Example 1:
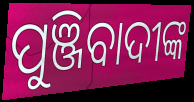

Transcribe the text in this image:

ପୁଞ୍ଜିବାଦୀଙ୍କ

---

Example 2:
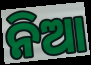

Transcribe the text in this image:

ନିଆ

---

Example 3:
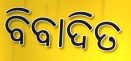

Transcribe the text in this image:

ବିବାଦିତ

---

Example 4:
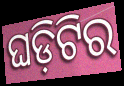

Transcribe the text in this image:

ଘଡ଼ିଟିର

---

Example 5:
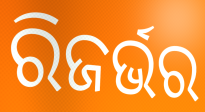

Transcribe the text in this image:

ରିଜର୍ଭର